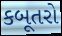
કબૂતરો